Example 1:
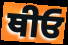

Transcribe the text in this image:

ਥੀਓ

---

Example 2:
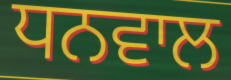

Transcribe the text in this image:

ਧਨਵਾਲ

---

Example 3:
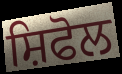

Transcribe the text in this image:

ਸ਼ਿਫੋਲ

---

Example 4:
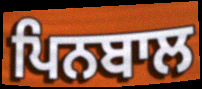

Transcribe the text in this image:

ਪਿਨਬਾਲ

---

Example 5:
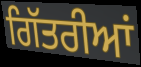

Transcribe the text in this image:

ਗਿੱਤਰੀਆਂ